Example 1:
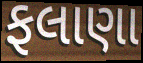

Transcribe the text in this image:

ફલાણા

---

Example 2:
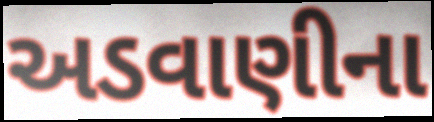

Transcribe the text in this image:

અડવાણીના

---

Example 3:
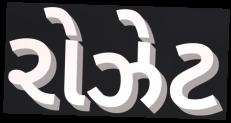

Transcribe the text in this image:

રોઝેટ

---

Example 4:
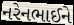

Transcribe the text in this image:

નરેનભાઈને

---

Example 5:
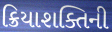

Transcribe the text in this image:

ક્રિયાશક્તિની